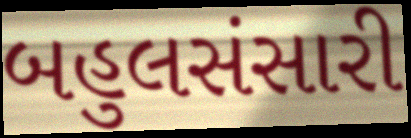
બહુલસંસારી